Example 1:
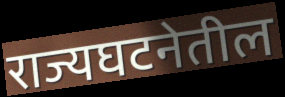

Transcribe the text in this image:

राज्यघटनेतील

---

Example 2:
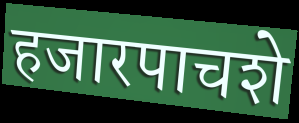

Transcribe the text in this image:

हजारपाचशे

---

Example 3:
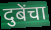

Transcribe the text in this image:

दुबेंचा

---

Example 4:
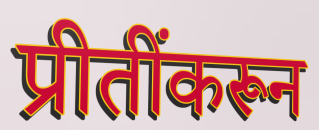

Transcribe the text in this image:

प्रीतींकरून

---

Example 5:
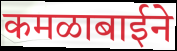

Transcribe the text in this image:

कमळाबाईने